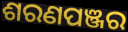
ଶରଣପଞ୍ଜର